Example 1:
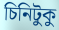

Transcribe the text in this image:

চিনিটুকু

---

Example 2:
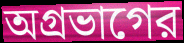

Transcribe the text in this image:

অগ্রভাগের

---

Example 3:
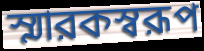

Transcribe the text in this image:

স্মারকস্বরূপ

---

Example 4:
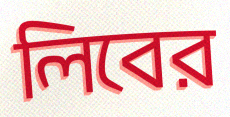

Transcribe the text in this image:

লিবের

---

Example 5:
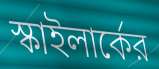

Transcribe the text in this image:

স্কাইলার্কের